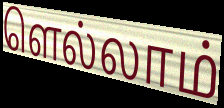
ளெல்லாம்